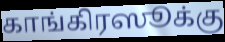
காங்கிரஸூக்கு